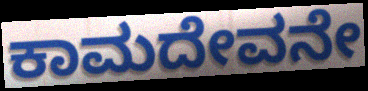
ಕಾಮದೇವನೇ